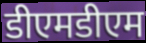
डीएमडीएम